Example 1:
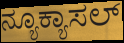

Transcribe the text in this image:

ನ್ಯೂಕ್ಯಾಸಲ್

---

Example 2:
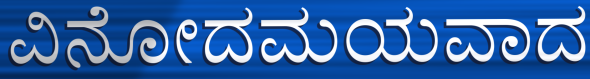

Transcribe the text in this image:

ವಿನೋದಮಯವಾದ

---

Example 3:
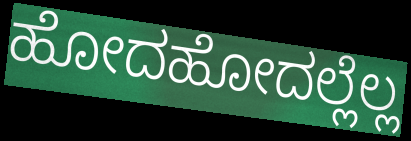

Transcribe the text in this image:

ಹೋದಹೋದಲ್ಲೆಲ್ಲ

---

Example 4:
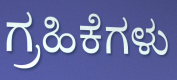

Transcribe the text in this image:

ಗ್ರಹಿಕೆಗಳು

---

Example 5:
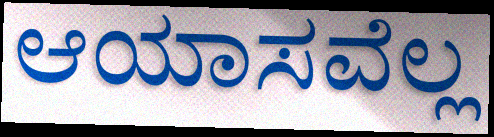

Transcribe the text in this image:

ಆಯಾಸವೆಲ್ಲ